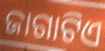
ଜାଗାଟିଏ